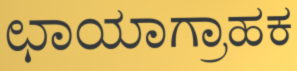
ಛಾಯಾಗ್ರಾಹಕ